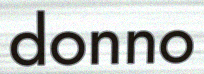
donno